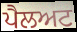
ਪੈਲਅਟ